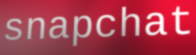
snapchat